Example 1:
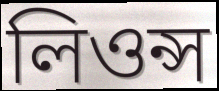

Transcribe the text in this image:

লিওন্স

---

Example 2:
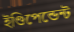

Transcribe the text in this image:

ইণ্ডিপেন্ডেন্ট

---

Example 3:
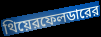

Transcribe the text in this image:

থিয়েরফেলডারের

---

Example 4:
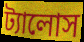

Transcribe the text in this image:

ট্যালোস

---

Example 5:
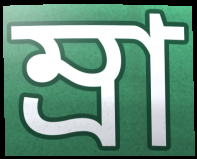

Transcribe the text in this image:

ম্রা